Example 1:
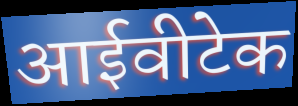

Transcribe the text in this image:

आईवीटेक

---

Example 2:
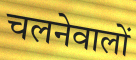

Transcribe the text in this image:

चलनेवालों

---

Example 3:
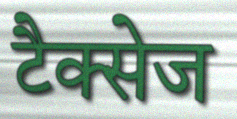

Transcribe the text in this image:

टैक्सेज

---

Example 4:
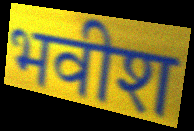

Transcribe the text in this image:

भवीश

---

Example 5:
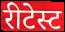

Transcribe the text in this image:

रीटेस्ट